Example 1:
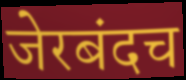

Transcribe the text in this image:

जेरबंदच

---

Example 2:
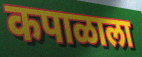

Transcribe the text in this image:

कपाळाला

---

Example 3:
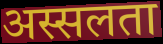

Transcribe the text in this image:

अस्सलता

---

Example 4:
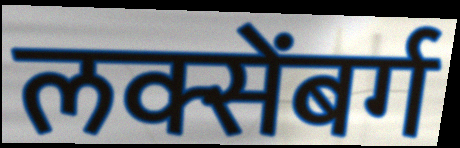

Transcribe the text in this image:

लक्सेंबर्ग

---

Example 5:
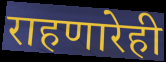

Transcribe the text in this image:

राहणारेही